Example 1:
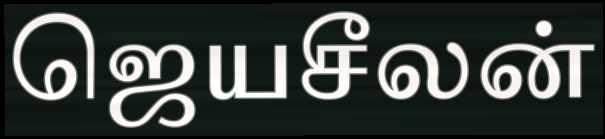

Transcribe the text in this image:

ஜெயசீலன்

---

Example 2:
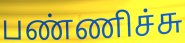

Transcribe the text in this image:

பண்ணிச்சு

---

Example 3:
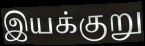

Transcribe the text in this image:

இயக்குறு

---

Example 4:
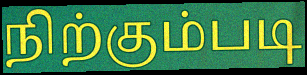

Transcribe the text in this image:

நிற்கும்படி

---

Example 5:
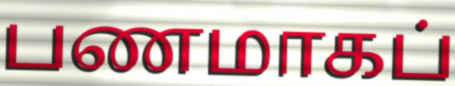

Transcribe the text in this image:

பணமாகப்